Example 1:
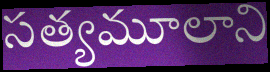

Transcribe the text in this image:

సత్యమూలాని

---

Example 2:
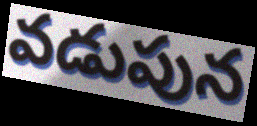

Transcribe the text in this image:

వడుపున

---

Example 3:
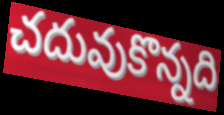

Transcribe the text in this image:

చదువుకొన్నది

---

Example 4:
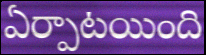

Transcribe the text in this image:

ఏర్పాటయింది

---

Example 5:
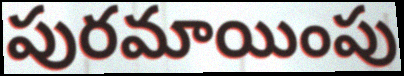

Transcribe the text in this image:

పురమాయింపు